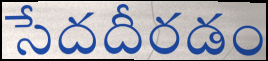
సేదదీరడం